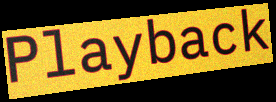
Playback